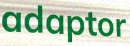
adaptor